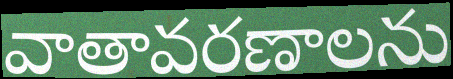
వాతావరణాలను